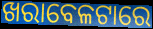
ଖରାବେଳଟାରେ